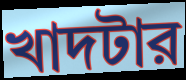
খাদটার